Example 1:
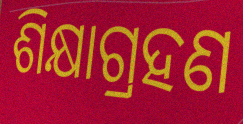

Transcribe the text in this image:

ଶିକ୍ଷାଗ୍ରହଣ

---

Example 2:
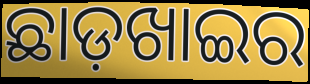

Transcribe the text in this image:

ଛାଡ଼ଖାଇର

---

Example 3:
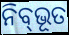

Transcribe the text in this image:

ନିବ୍‌ଭୂତ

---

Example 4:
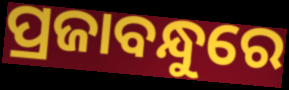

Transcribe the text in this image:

ପ୍ରଜାବନ୍ଧୁରେ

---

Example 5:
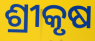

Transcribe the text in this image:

ଶ୍ରୀକୃଷ